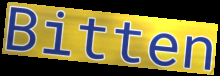
Bitten